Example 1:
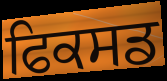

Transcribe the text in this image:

ਫਿਕਸਡ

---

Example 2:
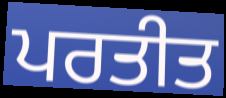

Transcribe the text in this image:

ਪਰਤੀਤ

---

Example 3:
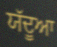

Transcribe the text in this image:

ਯੱਦੂਆ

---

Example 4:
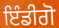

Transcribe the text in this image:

ਇੰਡੀਗੋ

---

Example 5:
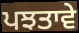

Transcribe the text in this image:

ਪਝਤਾਵੇ